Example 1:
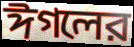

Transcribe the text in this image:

ঈগলের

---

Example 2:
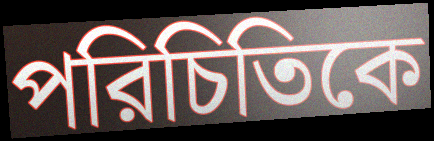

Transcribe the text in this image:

পরিচিতিকে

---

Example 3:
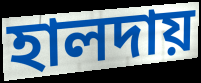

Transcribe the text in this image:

হালদায়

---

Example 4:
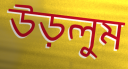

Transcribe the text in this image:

উড়লুম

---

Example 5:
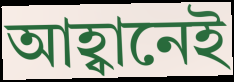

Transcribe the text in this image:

আহ্বানেই